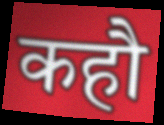
कहौ